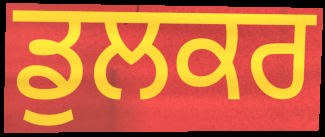
ਡੁਲਕਰ